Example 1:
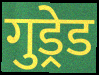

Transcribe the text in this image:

गुड्रेड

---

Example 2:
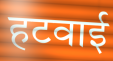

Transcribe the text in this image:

हटवाई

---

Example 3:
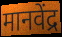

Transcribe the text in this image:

मानवेंद्र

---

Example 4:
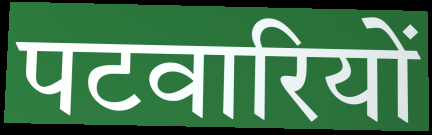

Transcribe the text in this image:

पटवारियों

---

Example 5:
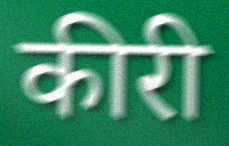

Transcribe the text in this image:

कीरी